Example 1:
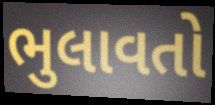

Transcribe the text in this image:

ભુલાવતો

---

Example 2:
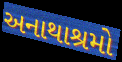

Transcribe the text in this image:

અનાથાશ્રમો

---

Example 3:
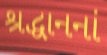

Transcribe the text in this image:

શ્રદ્ધાનનાં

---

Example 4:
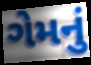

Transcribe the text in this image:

ગેમનું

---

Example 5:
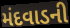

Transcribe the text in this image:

મંદવાડની